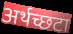
अर्थच्छटा